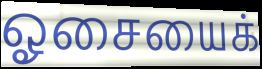
ஓசையைக்